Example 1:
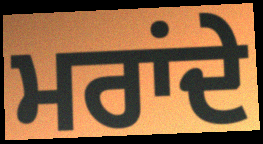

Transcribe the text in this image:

ਮਰਾਂਦੇ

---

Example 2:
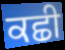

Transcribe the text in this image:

ਕਛੀ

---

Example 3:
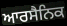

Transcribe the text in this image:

ਆਰਸੈਨਿਕ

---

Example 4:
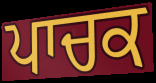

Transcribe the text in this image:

ਪਾਚਕ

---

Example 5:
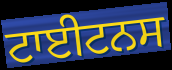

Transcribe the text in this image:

ਟਾਈਟਨਸ